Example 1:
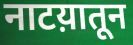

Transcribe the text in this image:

नाटय़ातून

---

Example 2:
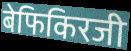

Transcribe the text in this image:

बेफिकिरजी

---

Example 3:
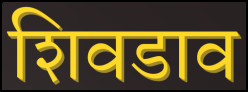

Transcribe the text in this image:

शिवडाव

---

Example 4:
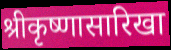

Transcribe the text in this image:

श्रीकृष्णासारिखा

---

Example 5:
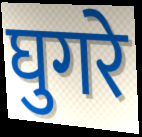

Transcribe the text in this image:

घुगरे